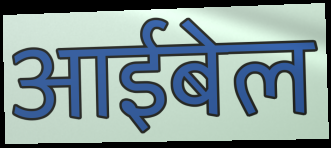
आईबेल